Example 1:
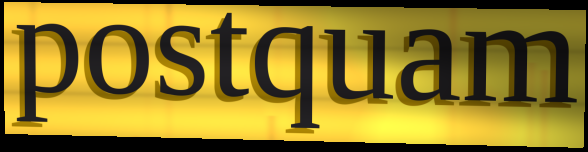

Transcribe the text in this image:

postquam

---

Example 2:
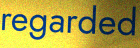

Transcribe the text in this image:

regarded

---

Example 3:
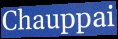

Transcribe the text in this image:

Chauppai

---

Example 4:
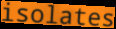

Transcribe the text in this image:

isolates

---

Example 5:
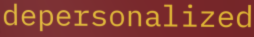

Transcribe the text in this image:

depersonalized